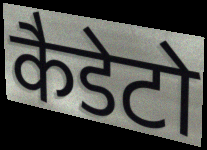
कैडेटो